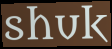
shuk